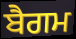
ਬੈਗਮ